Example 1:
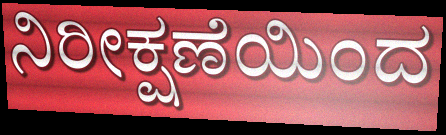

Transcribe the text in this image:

ನಿರೀಕ್ಷಣೆಯಿಂದ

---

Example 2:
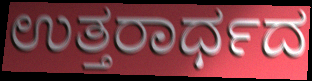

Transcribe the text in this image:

ಉತ್ತರಾರ್ಧದ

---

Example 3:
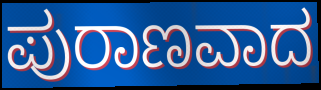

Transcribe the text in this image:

ಪುರಾಣವಾದ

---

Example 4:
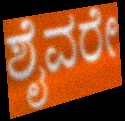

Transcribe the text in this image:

ಶೈವರೇ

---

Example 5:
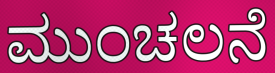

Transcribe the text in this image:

ಮುಂಚಲನೆ